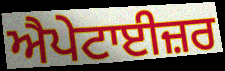
ਐਪੇਟਾਈਜ਼ਰ